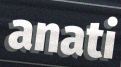
anati